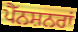
ਪੈੱਨਸ਼ਨਰਾਂ